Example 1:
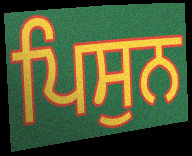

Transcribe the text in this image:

ਪਿਸੁਨ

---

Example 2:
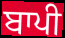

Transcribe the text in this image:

ਬਾਪੀ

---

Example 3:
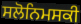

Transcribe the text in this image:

ਸਲੋਨਿਮਸਕੀ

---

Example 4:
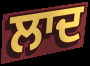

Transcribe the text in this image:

ਲਾਦ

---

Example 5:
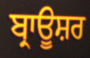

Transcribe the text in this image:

ਬ੍ਰਾਊਸ਼ਰ